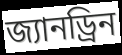
জ্যানড্রিন